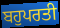
ਬਹੁਪਰਤੀ